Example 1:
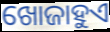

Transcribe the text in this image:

ଖୋଜାହୁଏ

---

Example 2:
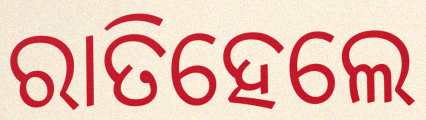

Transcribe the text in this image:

ରାତିହେଲେ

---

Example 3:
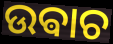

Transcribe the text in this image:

ଉଵାଚ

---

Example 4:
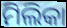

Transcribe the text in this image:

ମିଲିକା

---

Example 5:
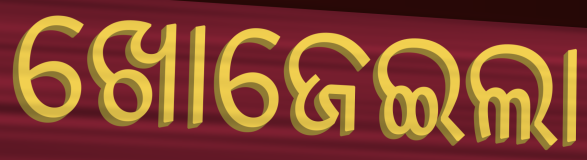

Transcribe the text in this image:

ଖୋଜେଇଲା